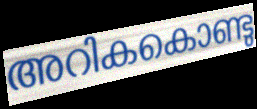
അറികകൊണ്ടു